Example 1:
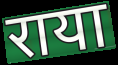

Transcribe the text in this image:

राया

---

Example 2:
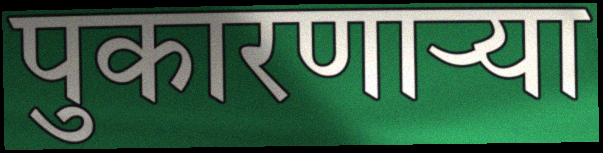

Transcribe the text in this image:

पुकारणार्‍या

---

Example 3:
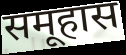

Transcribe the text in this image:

समूहास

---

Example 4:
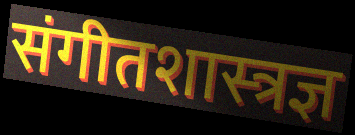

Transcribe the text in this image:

संगीतशास्त्रज्ञ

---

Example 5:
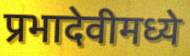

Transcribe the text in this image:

प्रभादेवीमध्ये